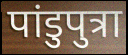
पांडुपुत्रा